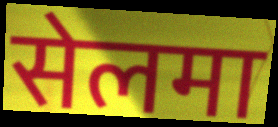
सेलमा